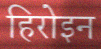
हिरोइन